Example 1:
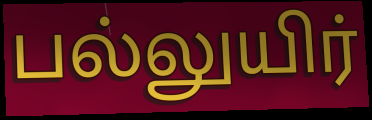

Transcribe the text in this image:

பல்லுயிர்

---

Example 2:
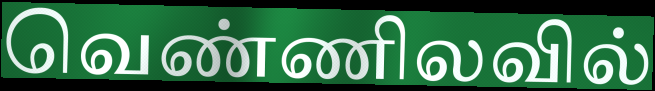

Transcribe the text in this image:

வெண்ணிலவில்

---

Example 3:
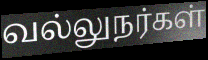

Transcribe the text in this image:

வல்லுநர்கள்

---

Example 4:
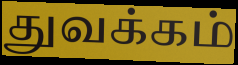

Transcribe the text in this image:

துவக்கம்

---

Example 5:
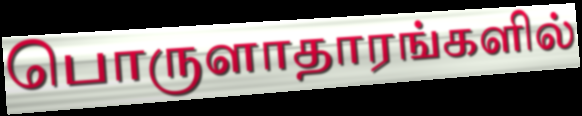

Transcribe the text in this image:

பொருளாதாரங்களில்